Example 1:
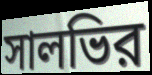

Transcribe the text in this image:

সালভির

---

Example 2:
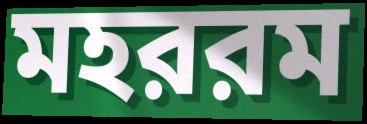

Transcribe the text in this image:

মহররম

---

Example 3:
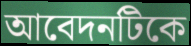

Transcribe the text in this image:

আবেদনটিকে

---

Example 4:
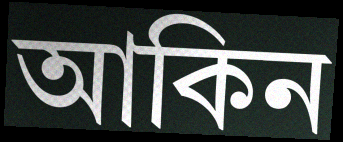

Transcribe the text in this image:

আকিন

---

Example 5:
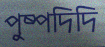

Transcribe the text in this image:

পুষ্পদিদি